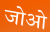
जोओ